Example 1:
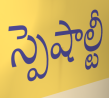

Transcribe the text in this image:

స్పెషాల్టీ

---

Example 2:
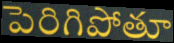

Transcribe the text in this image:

పెరిగిపోతూ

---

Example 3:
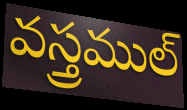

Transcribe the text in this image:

వస్త్రముల్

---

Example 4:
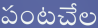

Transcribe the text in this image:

పంటచేల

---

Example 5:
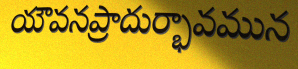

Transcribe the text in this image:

యౌవనప్రాదుర్భావమున